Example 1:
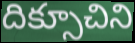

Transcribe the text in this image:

దిక్సూచిని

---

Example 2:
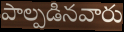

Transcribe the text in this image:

పాల్పడినవారు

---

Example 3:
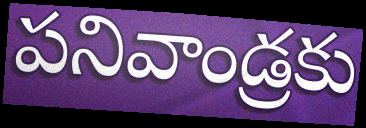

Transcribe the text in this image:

పనివాండ్రకు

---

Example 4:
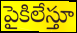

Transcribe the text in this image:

పైకిలేస్తూ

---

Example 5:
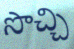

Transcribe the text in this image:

సొచ్చి